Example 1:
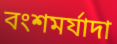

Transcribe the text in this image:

বংশমর্যাদা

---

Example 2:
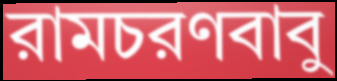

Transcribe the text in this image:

রামচরণবাবু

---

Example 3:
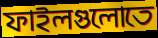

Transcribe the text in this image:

ফাইলগুলোতে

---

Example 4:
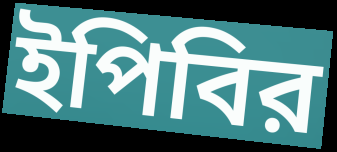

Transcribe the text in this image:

ইপিবির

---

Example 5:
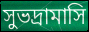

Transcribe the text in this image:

সুভদ্রামাসি